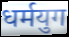
धर्मयुग